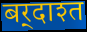
बर्दाश्त